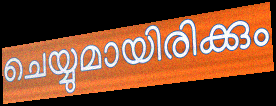
ചെയ്യുമായിരിക്കും